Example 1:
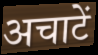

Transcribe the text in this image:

अचाटें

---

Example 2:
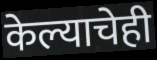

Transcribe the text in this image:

केल्याचेही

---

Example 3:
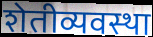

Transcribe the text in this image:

शेतीव्यवस्था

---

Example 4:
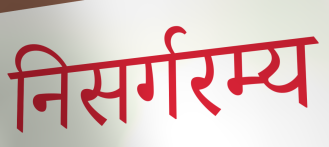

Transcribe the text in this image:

निसर्गरम्य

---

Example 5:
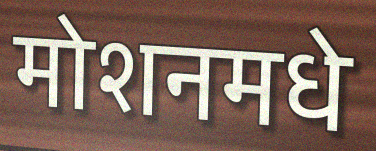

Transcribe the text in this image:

मोशनमधे